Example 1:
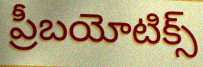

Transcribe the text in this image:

ప్రీబయోటిక్స్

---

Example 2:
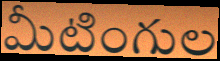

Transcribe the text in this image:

మీటింగుల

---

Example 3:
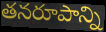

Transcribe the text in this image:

తనరూపాన్ని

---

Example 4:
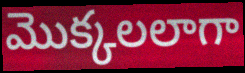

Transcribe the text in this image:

మొక్కలలాగా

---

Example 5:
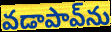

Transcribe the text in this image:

వడాపావ్‌ను